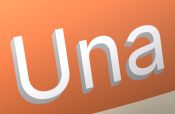
Una